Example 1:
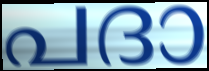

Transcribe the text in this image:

പദാ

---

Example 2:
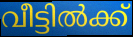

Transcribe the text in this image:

വീട്ടിൽക്ക്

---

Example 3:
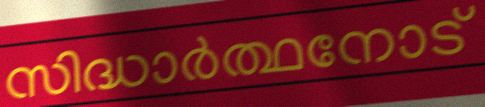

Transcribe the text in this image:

സിദ്ധാർത്ഥനോട്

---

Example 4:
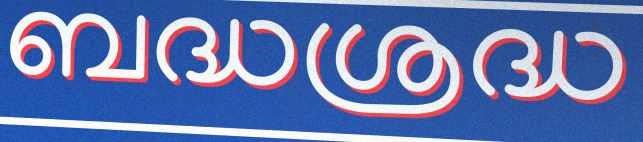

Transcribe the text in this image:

ബദ്ധശ്രദ്ധ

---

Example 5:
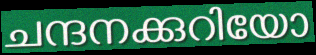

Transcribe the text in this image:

ചന്ദനക്കുറിയോ